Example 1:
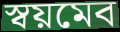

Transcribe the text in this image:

স্বয়মেব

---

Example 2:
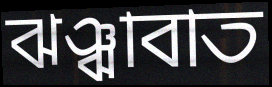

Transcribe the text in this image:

ঝঞ্ঝাবাত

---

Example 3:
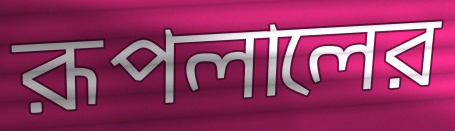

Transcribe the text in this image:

রূপলালের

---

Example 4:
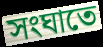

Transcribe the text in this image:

সংঘাতে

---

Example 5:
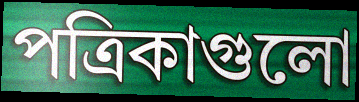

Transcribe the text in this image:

পত্রিকাগুলো